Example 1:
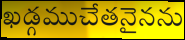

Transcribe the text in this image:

ఖడ్గముచేతనైనను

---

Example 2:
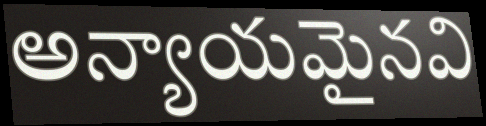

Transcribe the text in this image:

అన్యాయమైనవి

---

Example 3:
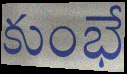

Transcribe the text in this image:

కుంభే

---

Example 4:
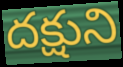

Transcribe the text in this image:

దక్షుని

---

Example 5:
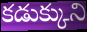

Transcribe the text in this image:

కడుక్కుని